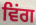
ਵਿਂਗ